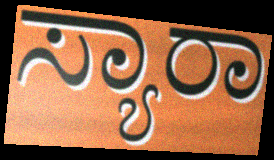
ಸ್ಯಾರಾ